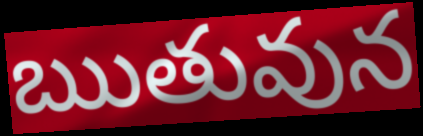
ఋతువున